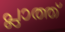
പ്ലാത്ത്